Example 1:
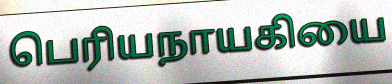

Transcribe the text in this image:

பெரியநாயகியை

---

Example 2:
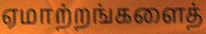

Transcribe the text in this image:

ஏமாற்றங்களைத்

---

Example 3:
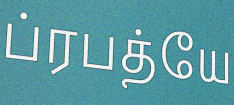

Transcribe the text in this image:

ப்ரபத்யே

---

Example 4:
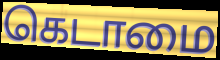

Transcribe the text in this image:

கெடாமை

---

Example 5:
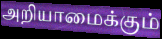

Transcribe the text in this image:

அறியாமைக்கும்